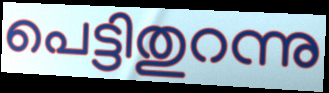
പെട്ടിതുറന്നു